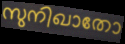
സുനിഖാതോ